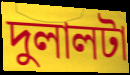
দুলালটা